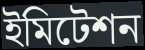
ইমিটেশন